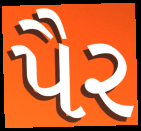
પૈર